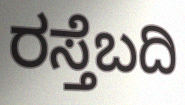
ರಸ್ತೆಬದಿ